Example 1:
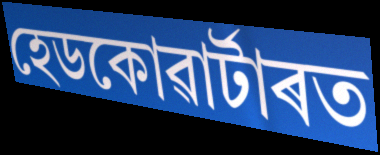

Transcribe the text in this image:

হেডকোৱাৰ্টাৰত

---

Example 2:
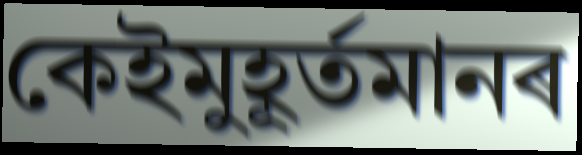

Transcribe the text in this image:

কেইমুহূৰ্তমানৰ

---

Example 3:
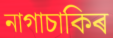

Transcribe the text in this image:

নাগাচাকিৰ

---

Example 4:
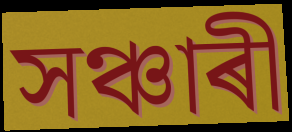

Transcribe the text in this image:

সঞ্চাৰী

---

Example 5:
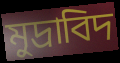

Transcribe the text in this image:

মুদ্ৰাবিদ